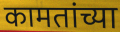
कामतांच्या